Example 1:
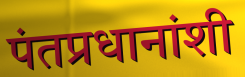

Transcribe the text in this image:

पंतप्रधानांशी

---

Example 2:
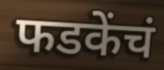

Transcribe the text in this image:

फडकेंचं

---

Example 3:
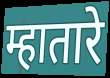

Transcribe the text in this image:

म्हातारे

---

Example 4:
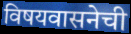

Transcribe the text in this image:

विषयवासनेची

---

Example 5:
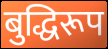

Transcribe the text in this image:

बुद्धिरूप